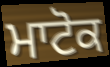
ਮਾਟੋਕ